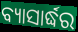
ବ୍ୟାସାର୍ଦ୍ଧର